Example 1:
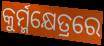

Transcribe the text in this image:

କୁର୍ମ୍ମକ୍ଷେତ୍ରରେ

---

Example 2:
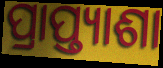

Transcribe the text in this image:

ପ୍ରାପ୍ତ୍ୟାଶା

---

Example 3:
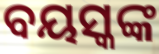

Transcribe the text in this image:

ବୟସ୍କଙ୍କ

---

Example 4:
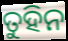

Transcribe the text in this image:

ତୁହିନ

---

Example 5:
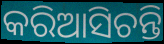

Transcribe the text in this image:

କରିଆସିଚନ୍ତି